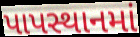
પાપસ્થાનમાં